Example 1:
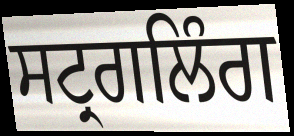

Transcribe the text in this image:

ਸਟ੍ਰਗਲਿੰਗ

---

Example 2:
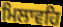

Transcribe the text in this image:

ਮਿਲਾਵਹਿ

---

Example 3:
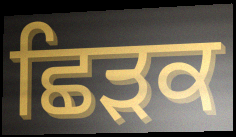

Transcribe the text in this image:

ਛਿੜਕ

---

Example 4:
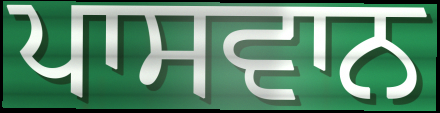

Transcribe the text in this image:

ਪਾਸਵਾਨ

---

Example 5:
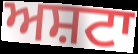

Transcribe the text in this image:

ਅਸ਼ਟਾ